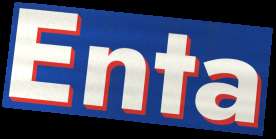
Enta